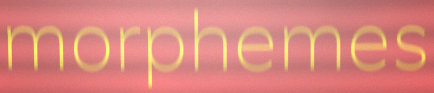
morphemes